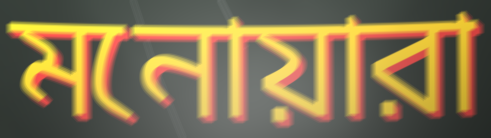
মনোয়ারা